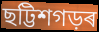
ছট্টিশগড়ৰ